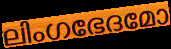
ലിംഗഭേദമോ